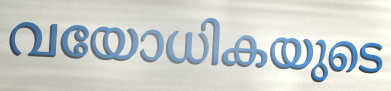
വയോധികയുടെ